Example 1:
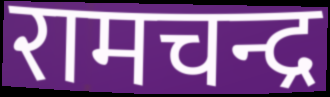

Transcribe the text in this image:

रामचन्द्र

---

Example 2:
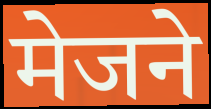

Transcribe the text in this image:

मेजने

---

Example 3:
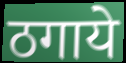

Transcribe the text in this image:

ठगाये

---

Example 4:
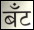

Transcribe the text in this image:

बँट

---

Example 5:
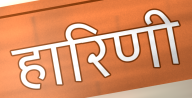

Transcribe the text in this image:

हारिणी